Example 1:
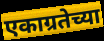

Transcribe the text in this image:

एकाग्रतेच्या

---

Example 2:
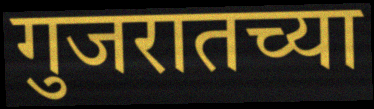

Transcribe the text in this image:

गुजरातच्या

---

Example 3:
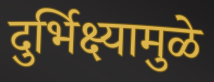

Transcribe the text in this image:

दुर्भिक्ष्यामुळे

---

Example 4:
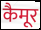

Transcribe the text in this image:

कैमूर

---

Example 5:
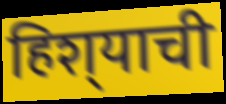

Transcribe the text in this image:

हिश्याची